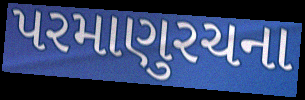
પરમાણુરચના